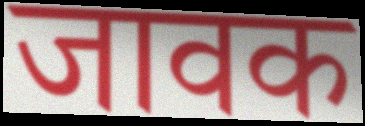
जावक